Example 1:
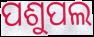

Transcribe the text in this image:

ପଶୁପଲ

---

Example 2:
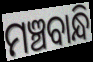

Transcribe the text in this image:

ମଞ୍ଚବାନ୍ଧି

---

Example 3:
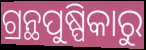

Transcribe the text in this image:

ଗ୍ରନ୍ଥପୁଷ୍ପିକାରୁ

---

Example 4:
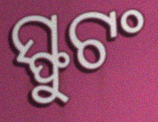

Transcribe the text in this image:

ସ୍ଫୁଟଂ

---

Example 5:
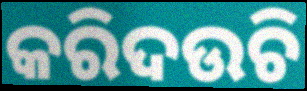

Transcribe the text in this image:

କରିଦଉଚି